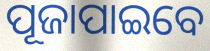
ପୂଜାପାଇବେ